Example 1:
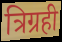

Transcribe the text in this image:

त्रिग्रही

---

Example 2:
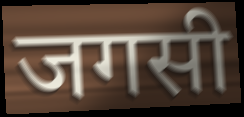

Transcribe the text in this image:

जगसी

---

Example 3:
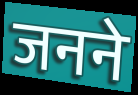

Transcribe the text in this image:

जनने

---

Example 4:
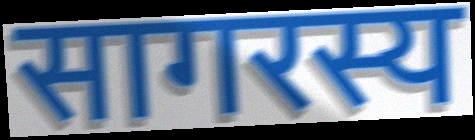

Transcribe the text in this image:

सागरस्य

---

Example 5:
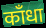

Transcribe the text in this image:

काँधा